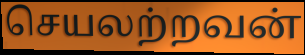
செயலற்றவன்